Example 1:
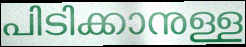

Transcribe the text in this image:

പിടിക്കാനുള്ള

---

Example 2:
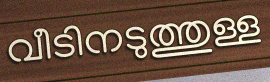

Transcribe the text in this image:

വീടിനടുത്തുള്ള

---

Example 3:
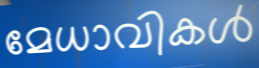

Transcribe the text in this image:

മേധാവികൾ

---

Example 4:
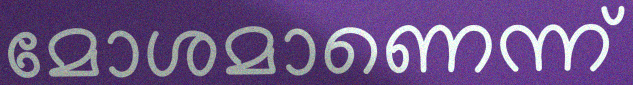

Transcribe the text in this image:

മോശമാണെന്ന്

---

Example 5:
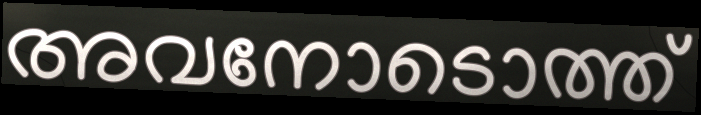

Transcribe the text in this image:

അവനോടൊത്ത്